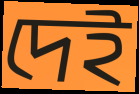
দেই